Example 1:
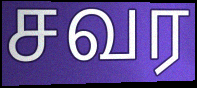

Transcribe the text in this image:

சவர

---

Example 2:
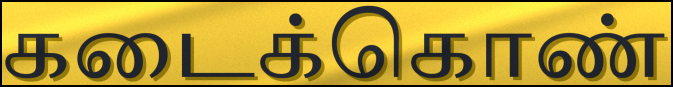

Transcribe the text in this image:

கடைக்கொண்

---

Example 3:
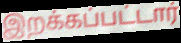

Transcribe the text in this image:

இறக்கப்பட்டார்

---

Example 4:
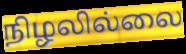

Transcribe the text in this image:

நிழலில்லை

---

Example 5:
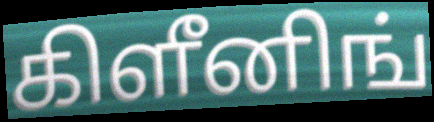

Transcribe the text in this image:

கிளீனிங்